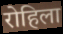
रोहिला